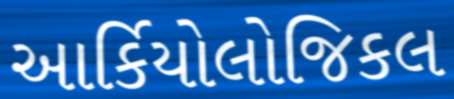
આર્કિયોલોજિકલ